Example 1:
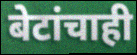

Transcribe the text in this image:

बेटांचाही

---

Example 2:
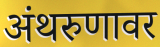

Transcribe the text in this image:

अंथरुणावर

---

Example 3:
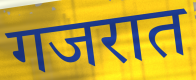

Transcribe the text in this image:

गजरात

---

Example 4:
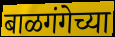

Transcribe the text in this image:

बाळगंगेच्या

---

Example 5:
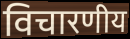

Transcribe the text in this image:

विचारणीय